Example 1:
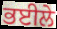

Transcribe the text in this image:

ਭਈਲੇ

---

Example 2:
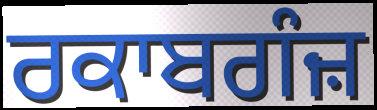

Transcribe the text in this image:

ਰਕਾਬਗੰਜ਼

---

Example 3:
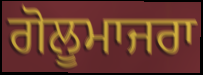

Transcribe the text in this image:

ਗੋਲੂਮਾਜਰਾ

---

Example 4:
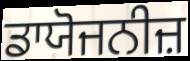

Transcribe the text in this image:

ਡਾਯੋਜਨੀਜ਼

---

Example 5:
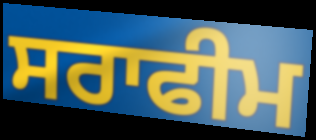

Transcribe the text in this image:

ਸਰਾਫੀਮ